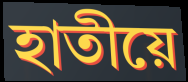
হাতীয়ে